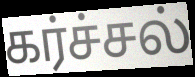
கர்ச்சல்